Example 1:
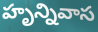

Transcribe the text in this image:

హృన్నివాస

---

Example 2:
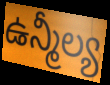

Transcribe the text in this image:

ఉన్మీల్య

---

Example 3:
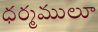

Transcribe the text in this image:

ధర్మములూ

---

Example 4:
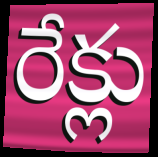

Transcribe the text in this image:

రేక్లు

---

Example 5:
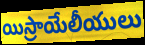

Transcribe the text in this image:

యిస్రాయేలీయులు